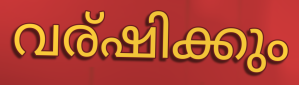
വര്ഷിക്കും